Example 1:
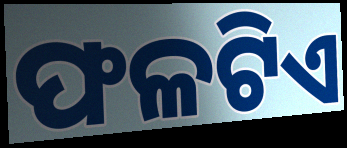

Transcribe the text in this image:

ଫଳଟିଏ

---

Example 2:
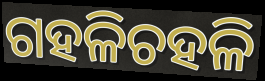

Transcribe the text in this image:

ଗହଳିଚହଳି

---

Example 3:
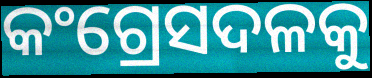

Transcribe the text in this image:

କଂଗ୍ରେସଦଳକୁ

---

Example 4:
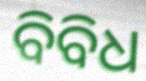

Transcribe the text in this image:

ବିବିଧ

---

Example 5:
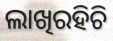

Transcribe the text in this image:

ଲାଖିରହିଚି